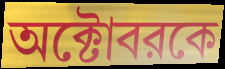
অক্টোবরকে